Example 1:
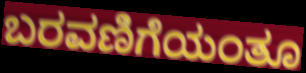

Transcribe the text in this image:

ಬರವಣಿಗೆಯಂತೂ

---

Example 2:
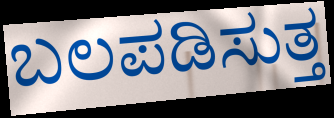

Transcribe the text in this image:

ಬಲಪಡಿಸುತ್ತ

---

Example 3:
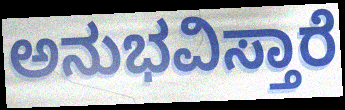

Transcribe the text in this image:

ಅನುಭವಿಸ್ತಾರೆ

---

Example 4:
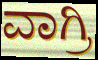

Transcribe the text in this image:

ವಾಗ್ರಿ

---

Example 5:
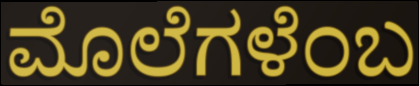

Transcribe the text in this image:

ಮೊಲೆಗಳೆಂಬ